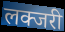
लक्जरी